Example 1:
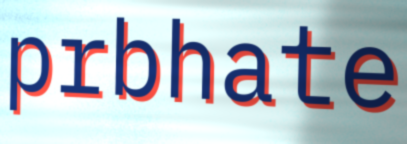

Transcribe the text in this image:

prbhate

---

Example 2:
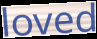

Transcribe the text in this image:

loved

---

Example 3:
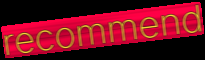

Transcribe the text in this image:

recommend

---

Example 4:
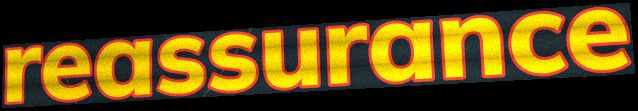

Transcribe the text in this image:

reassurance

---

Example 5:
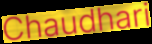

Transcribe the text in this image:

Chaudhari